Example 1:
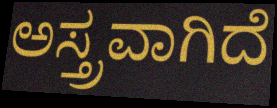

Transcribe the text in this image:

ಅಸ್ತ್ರವಾಗಿದೆ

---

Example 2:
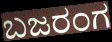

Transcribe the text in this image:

ಬಜರಂಗ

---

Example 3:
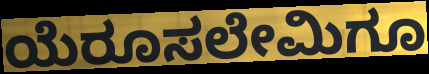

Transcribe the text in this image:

ಯೆರೂಸಲೇಮಿಗೂ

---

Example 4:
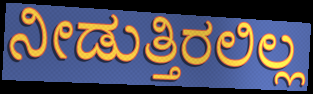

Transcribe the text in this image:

ನೀಡುತ್ತಿರಲಿಲ್ಲ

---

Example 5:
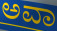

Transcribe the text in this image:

ಅವಾ